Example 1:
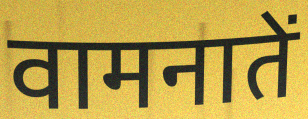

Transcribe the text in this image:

वामनातें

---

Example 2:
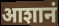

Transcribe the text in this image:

आशानं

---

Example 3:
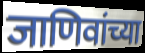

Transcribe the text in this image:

जाणिवांच्या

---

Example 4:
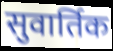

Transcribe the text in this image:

सुवार्तिक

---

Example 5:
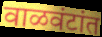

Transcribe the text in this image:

वाळवंटांत